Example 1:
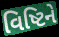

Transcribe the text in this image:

વિષ્ટિને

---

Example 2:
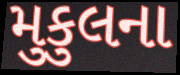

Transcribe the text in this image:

મુકુલના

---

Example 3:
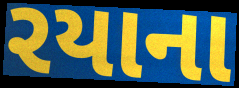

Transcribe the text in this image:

રયાના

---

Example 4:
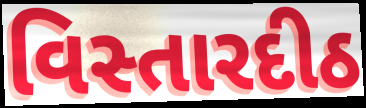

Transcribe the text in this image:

વિસ્તારદીઠ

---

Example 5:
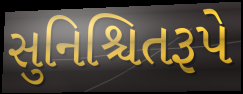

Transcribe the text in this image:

સુનિશ્ચિતરૂપે